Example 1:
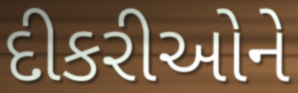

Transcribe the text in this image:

દીકરીઓને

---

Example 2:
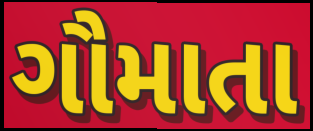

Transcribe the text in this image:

ગૌમાતા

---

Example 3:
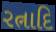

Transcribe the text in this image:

રત્નાદિ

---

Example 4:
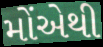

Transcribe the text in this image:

મોંએથી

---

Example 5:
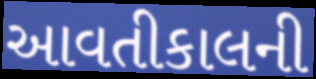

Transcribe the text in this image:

આવતીકાલની